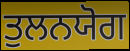
ਤੁਲਨਯੋਗ